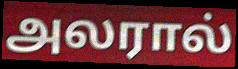
அலரால்